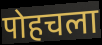
पोहचला